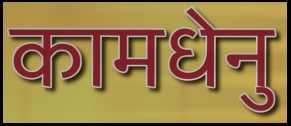
कामधेनु